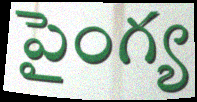
పైంగ్య